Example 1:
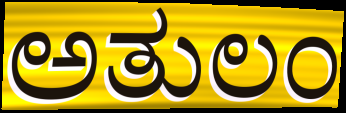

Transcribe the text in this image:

ಅತುಲಂ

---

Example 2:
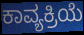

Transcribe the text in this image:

ಕಾವ್ಯಕ್ರಿಯೆ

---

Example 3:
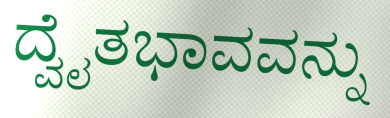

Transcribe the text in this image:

ದ್ವೈತಭಾವವನ್ನು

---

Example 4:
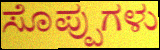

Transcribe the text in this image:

ಸೊಪ್ಪುಗಳು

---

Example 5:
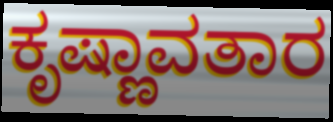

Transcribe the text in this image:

ಕೃಷ್ಣಾವತಾರ